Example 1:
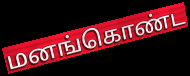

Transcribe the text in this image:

மனங்கொண்ட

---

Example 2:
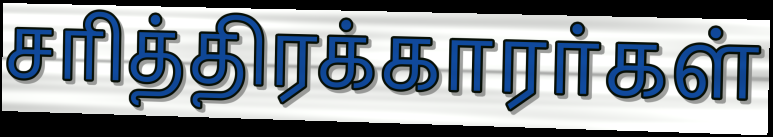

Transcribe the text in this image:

சரித்திரக்காரர்கள்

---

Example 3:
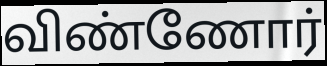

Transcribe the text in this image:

விண்ணோர்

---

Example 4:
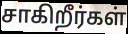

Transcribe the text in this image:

சாகிறீர்கள்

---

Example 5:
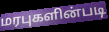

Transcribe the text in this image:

மரபுகளின்படி